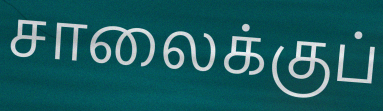
சாலைக்குப்